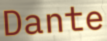
Dante